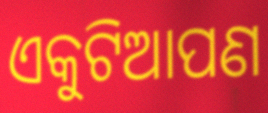
ଏକୁଟିଆପଣ